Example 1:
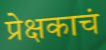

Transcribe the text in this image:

प्रेक्षकाचं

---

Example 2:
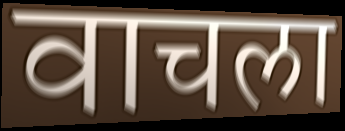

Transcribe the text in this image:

वाचला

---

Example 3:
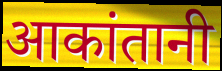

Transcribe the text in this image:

आकांतानी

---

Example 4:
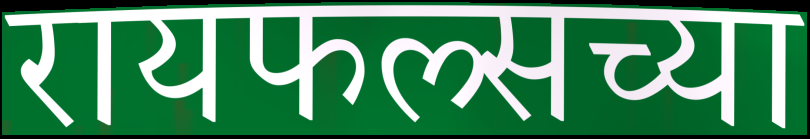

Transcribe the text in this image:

रायफल्सच्या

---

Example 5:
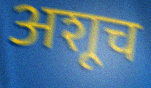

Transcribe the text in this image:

अश्रूच